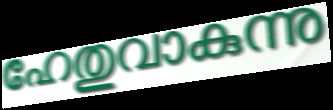
ഹേതുവാകുന്നു